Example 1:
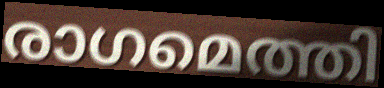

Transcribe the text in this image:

രാഗമെത്തി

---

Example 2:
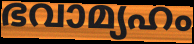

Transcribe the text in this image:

ഭവാമ്യഹം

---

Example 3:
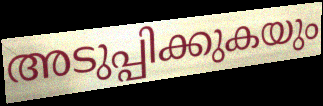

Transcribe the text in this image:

അടുപ്പിക്കുകയും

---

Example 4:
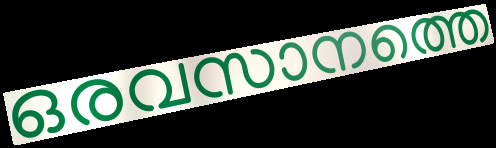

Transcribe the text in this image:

ഒരവസാനത്തെ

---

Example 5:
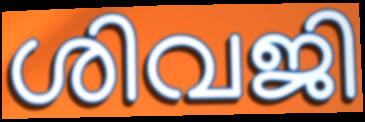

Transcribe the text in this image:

ശിവജി